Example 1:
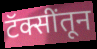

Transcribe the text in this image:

टॅक्सींतून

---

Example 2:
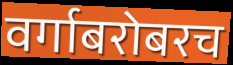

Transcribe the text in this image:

वर्गाबरोबरच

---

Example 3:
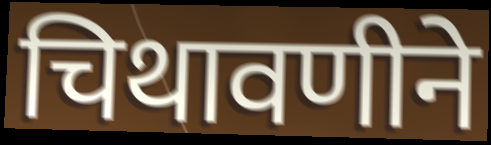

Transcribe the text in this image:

चिथावणीने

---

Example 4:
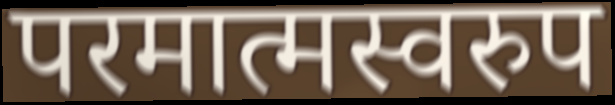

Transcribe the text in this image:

परमात्मस्वरुप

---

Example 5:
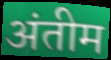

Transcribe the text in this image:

अंतीम